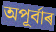
অপূৰ্বাৰ